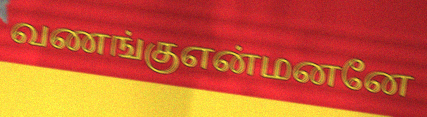
வணங்குஎன்மனனே